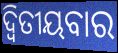
ଦ୍ୱିତୀୟବାର